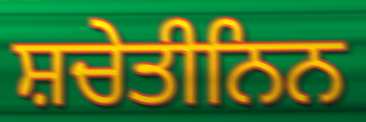
ਸ਼ਚੇਤੀਨਿਨ